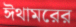
ঈথামরের